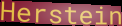
Herstein